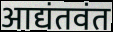
आद्यंतवंत